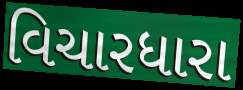
વિચારધારા